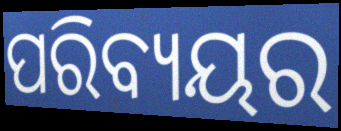
ପରିବ୍ୟୟର